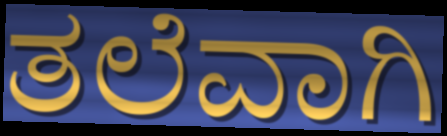
ತಲೆವಾಗಿ